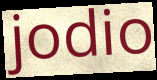
jodio